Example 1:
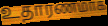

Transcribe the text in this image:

உதாரணமாக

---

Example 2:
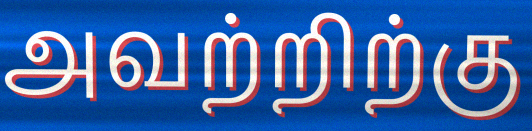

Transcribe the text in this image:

அவற்றிற்கு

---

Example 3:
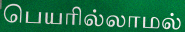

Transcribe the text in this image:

பெயரில்லாமல்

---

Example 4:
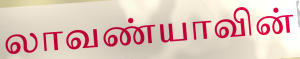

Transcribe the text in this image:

லாவண்யாவின்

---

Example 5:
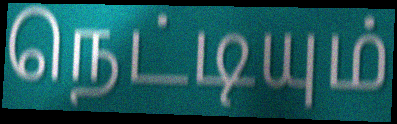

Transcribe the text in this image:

நெட்டியும்